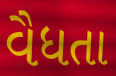
વૈધતા